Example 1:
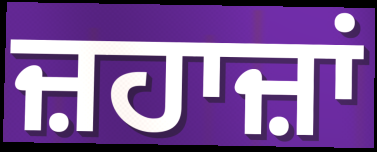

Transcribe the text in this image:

ਜ਼ਹਾਜ਼ਾਂ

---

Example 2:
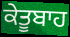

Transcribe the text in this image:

ਕੇਤੂਬਾਹ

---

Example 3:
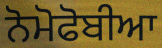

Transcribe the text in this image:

ਨੋਮੋਫੋਬੀਆ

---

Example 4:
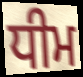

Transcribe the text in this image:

ਧੀਮ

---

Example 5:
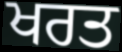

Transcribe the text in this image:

ਖਰਤ